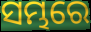
ସମ୍ଭରେ